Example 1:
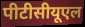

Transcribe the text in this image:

पीटीसीयूएल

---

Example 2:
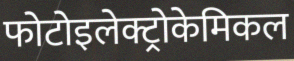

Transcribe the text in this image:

फोटोइलेक्ट्रोकेमिकल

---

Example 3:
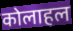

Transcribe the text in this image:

कोलाहल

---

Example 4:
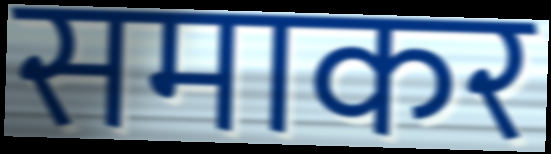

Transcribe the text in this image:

समाकर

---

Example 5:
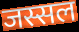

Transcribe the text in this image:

जस्सल